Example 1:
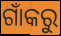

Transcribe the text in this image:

ଗାଁକରୁ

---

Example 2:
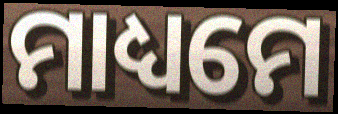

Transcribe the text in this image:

ମାଧ୍ୟମେ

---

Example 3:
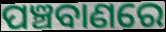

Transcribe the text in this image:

ପଞ୍ଚବାଣରେ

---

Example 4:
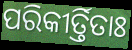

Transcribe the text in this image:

ପରିକୀର୍ତ୍ତିତାଃ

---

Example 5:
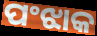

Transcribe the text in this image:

ପଂଝାକ